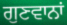
ਗੁਣਵਾਨਾਂ